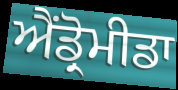
ਐਂਡ੍ਰੋਮੀਡਾ